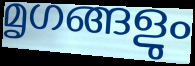
മൃഗങ്ങളും